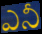
ఎనీ